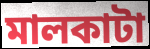
মালকাটা